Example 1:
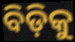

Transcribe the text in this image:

ବିଡ଼ିକୁ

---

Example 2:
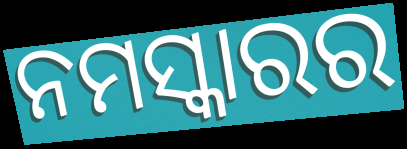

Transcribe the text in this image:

ନମସ୍କାରର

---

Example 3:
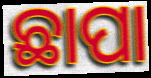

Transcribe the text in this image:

ଛାପା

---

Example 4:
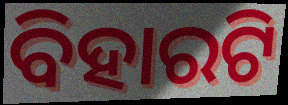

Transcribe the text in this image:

ବିହାରଟି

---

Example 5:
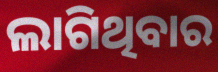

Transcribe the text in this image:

ଲାଗିଥିବାର